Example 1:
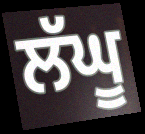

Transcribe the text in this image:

ਲੱਘੂ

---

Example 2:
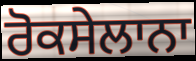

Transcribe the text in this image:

ਰੋਕਸੇਲਾਨਾ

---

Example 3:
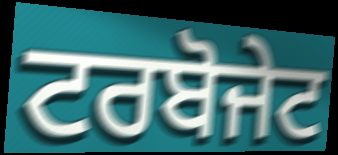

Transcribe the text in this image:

ਟਰਬੋਜੇਟ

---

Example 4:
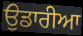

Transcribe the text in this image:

ਉਡਾਰੀਆ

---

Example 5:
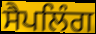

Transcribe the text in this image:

ਸੈਪਲਿੰਗ